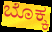
ಬೊಕ್ಕ